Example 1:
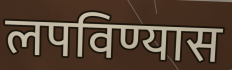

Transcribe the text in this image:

लपविण्यास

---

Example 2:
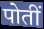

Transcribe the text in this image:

पोतीं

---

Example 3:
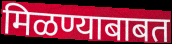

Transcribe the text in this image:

मिळण्याबाबत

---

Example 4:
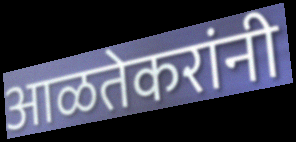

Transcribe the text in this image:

आळतेकरांनी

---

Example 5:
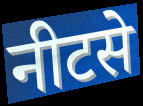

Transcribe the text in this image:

नीटसे